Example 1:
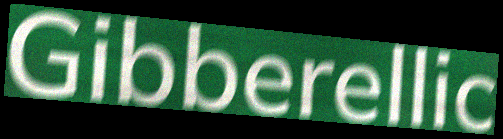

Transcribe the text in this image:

Gibberellic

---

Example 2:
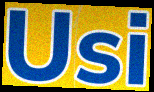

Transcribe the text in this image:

Usi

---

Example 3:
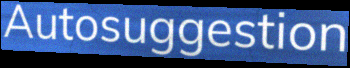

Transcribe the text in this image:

Autosuggestion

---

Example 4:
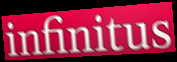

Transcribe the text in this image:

infinitus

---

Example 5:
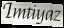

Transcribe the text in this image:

Imtiyaz